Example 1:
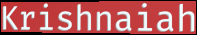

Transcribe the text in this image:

Krishnaiah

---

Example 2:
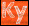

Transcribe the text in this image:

Ky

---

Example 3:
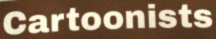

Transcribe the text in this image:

Cartoonists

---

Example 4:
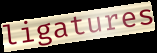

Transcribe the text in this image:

ligatures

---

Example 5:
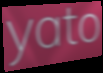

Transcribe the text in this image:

yato